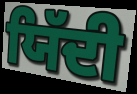
ਯਿੱਦੀ